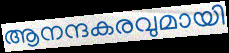
ആനന്ദകരവുമായി